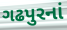
ગઢપુરનાં